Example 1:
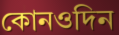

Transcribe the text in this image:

কোনওদিন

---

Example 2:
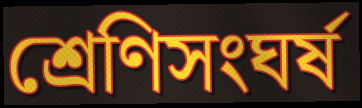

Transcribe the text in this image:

শ্রেণিসংঘর্ষ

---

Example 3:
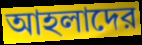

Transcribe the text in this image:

আহলাদের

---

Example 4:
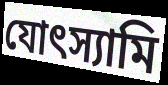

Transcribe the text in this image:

যোৎস্যামি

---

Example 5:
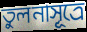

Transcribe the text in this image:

তুলনাসূত্রে